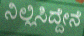
ನಿಲ್ಲಿಸಿದ್ದೇನೆ